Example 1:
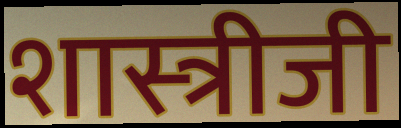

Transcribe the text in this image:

शास्त्रीजी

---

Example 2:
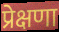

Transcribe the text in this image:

प्रेक्षणा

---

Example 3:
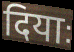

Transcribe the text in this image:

दियाः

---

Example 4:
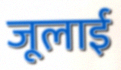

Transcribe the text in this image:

जूलाई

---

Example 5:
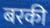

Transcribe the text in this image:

बरकी